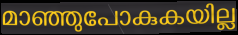
മാഞ്ഞുപോകുകയില്ല